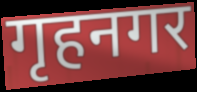
गृहनगर